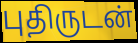
புதிருடன்